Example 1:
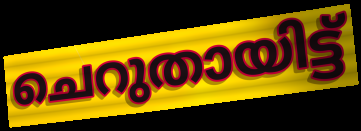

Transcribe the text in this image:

ചെറുതായിട്ട്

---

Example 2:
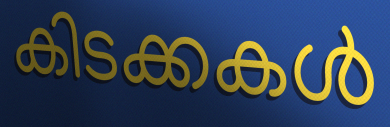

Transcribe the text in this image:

കിടക്കകൾ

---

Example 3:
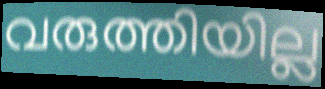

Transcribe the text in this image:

വരുത്തിയില്ല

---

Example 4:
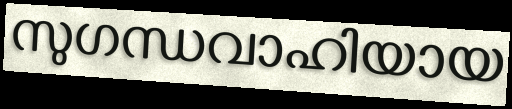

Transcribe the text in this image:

സുഗന്ധവാഹിയായ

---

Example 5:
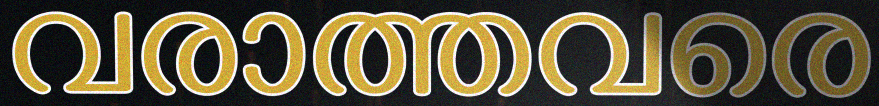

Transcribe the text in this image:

വരാത്തവരെ